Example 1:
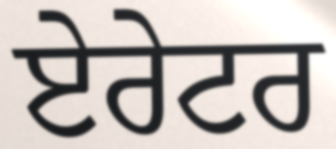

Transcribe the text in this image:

ਏਰੇਟਰ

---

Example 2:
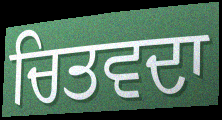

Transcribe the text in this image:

ਚਿਤਵਦਾ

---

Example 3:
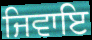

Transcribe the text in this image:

ਜਿਵਾਇ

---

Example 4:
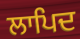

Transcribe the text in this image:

ਲਾਪਿਦ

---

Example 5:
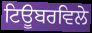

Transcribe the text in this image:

ਟਿਊਬਰਵਿਲੇ